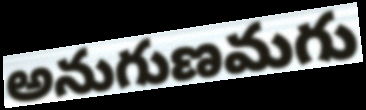
అనుగుణమగు